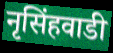
नृसिंहवाडी